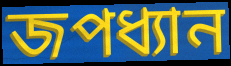
জপধ্যান